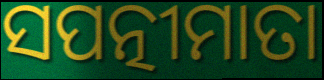
ସପତ୍ନୀମାତା